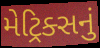
મેટ્રિક્સનું